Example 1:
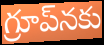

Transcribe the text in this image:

గ్రూప్‌నకు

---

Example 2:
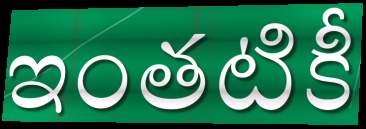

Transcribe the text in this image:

ఇంతటికీ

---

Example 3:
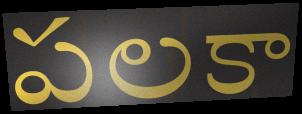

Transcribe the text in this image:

పలకా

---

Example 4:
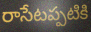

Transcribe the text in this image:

రాసేటప్పటికి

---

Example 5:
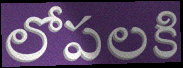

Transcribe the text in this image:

లోపలకి